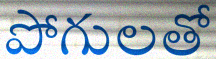
పోగులతో